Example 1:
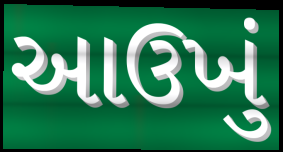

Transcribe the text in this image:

આઉખું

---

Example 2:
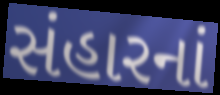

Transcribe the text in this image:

સંહારનાં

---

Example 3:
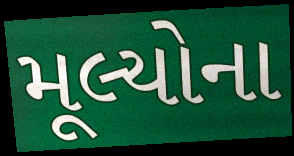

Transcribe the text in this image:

મૂલ્‍યોના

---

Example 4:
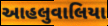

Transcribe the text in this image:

આહલુવાલિયા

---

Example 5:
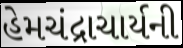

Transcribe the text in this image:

હેમચંદ્રાચાર્યની